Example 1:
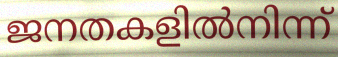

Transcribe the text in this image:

ജനതകളിൽനിന്ന്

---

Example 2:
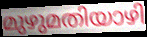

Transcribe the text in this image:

മുഴുമതിയാഴി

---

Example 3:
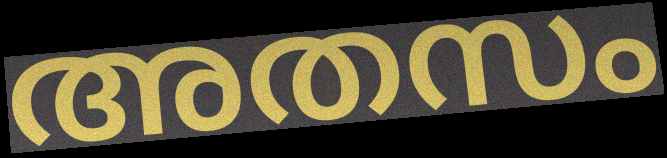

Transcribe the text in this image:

അതസം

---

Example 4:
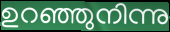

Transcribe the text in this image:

ഉറഞ്ഞുനിന്നു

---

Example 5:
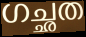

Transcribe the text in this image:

ഗച്ഛത